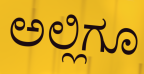
ಅಲ್ಲಿಗೂ